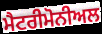
ਮੈਟਰੀਮੋਨੀਅਲ